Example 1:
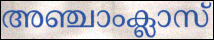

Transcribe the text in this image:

അഞ്ചാംക്ലാസ്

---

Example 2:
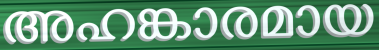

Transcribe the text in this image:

അഹങ്കാരമായ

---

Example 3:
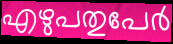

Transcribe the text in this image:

എഴുപതുപേർ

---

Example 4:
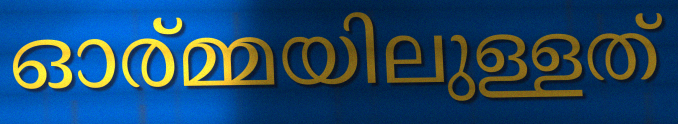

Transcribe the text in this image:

ഓര്മ്മയിലുള്ളത്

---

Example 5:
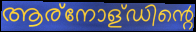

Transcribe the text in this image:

ആര്നോള്ഡിന്റെ